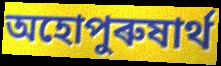
অহোপুৰুষাৰ্থ